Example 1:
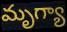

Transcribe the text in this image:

మృగ్యా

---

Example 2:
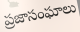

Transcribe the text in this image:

ప్రజాసంఘాలు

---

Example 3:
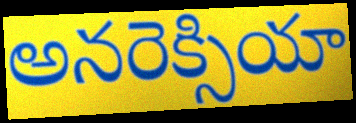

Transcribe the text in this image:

అనరెక్సియా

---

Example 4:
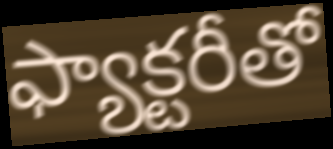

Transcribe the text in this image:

ఫ్యాక్టరీతో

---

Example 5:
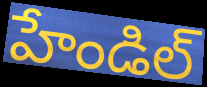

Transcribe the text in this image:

హేండిల్